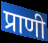
प्राणी